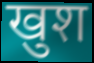
खुश